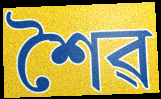
শৈৱ